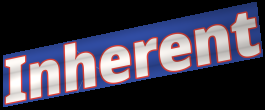
Inherent